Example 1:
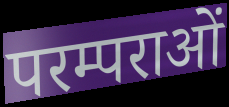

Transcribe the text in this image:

परम्पराओं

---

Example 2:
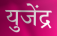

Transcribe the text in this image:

युजेंद्र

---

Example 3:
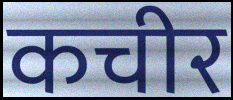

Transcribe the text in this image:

कचीर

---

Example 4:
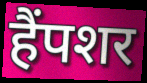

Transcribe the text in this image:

हैंपशर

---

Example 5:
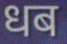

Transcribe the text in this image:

धब